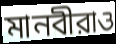
মানবীরাও